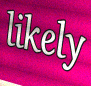
likely